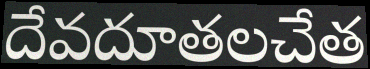
దేవదూతలచేత